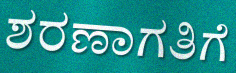
ಶರಣಾಗತಿಗೆ